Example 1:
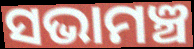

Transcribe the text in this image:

ସଭାମଞ୍ଚ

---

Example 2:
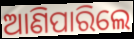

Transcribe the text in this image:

ଆଣିପାରିଲେ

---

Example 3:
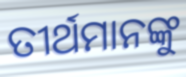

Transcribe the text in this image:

ତୀର୍ଥମାନଙ୍କୁ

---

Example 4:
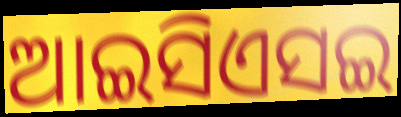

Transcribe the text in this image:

ଆଇସିଏସଇ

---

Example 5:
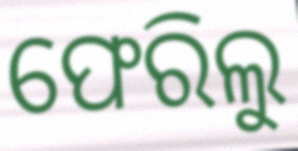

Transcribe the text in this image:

ଫେରିଲୁ